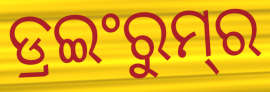
ଡ୍ରଇଂରୁମ୍‌ର